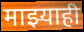
माझ्याही